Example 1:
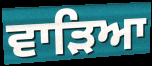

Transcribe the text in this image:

ਵਾੜਿਆ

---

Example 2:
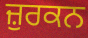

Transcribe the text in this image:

ਜ਼ੁਰਕਨ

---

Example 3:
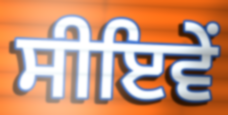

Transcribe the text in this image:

ਸੀਇਵੇਂ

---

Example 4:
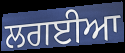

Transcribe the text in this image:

ਲਗਈਆ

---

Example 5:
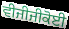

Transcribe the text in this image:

ਵੀਜੀਜੀਕੋਈ